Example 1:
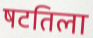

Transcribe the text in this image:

षटतिला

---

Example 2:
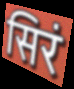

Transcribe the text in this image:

सिरं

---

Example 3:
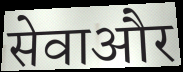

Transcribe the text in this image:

सेवाऔर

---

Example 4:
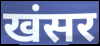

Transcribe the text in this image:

खंसर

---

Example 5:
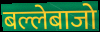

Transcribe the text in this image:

बल्लेबाजो